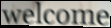
welcome